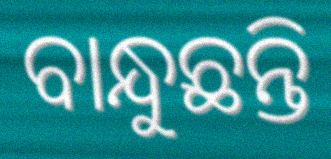
ବାନ୍ଧୁଛନ୍ତି